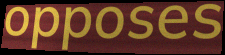
opposes